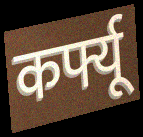
कर्फ्यू